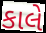
કાલે